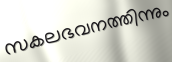
സകലഭവനത്തിന്നും